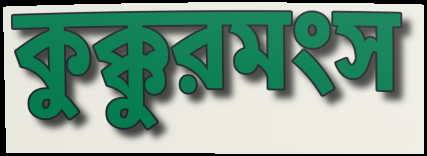
কুক্কুরমংস